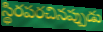
స్థిరపరచినప్పుడు